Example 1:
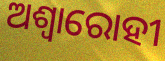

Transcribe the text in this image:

ଅଶ୍ଵାରୋହୀ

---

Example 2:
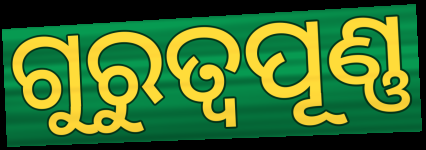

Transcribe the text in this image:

ଗୁରୁତ୍ବପୂଣ୍ଣ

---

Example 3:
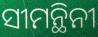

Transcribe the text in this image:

ସୀମନ୍ଥିନୀ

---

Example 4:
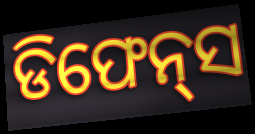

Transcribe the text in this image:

ଡିଫେନ୍‌ସ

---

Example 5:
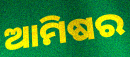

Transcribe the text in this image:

ଆମିଷର